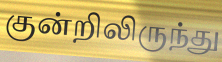
குன்றிலிருந்து